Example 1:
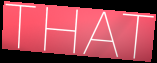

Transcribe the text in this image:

THAT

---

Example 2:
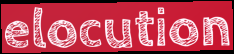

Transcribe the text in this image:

elocution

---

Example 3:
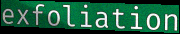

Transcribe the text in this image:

exfoliation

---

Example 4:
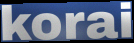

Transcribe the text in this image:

korai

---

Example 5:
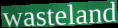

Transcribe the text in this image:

wasteland